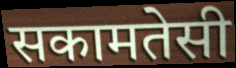
सकामतेसी